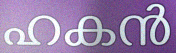
ഹകൻ